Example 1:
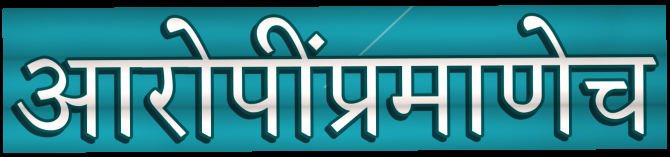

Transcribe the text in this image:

आरोपींप्रमाणेच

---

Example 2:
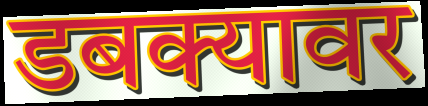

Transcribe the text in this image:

डबक्यावर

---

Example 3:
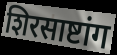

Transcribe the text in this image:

शिरसाष्टांग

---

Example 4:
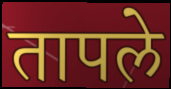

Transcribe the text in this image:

तापले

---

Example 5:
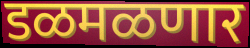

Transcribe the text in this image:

डळमळणार